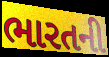
ભારતની